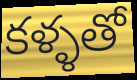
కళ్ళతో